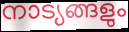
നാട്യങ്ങളും